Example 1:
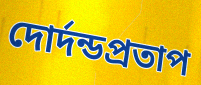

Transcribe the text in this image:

দোর্দন্ডপ্রতাপ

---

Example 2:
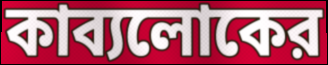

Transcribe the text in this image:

কাব্যলোকের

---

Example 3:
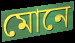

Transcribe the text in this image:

মোনে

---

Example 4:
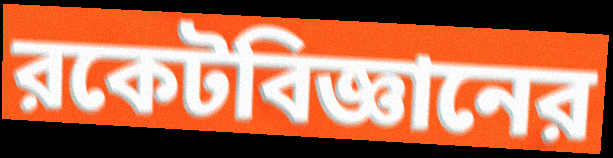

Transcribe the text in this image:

রকেটবিজ্ঞানের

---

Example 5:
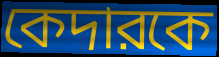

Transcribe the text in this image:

কেদারকে